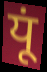
यूं